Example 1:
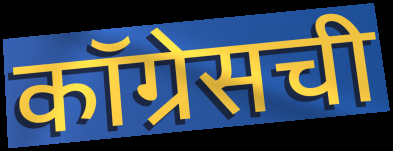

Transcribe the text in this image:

कॉग्रेसची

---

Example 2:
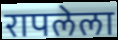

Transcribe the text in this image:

रापलेला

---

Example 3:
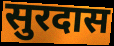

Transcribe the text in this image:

सुरदास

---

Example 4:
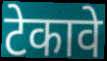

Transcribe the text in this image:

टेकावे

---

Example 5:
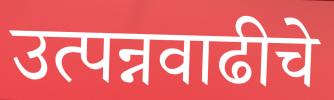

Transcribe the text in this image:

उत्पन्नवाढीचे